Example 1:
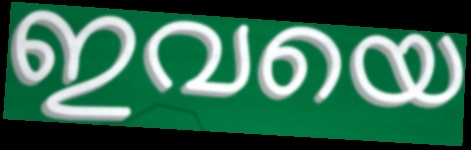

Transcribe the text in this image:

ഇവയെ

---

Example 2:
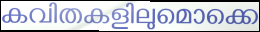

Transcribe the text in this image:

കവിതകളിലുമൊക്കെ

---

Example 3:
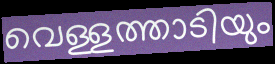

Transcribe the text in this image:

വെള്ളത്താടിയും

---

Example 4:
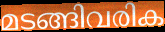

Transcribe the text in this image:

മടങ്ങിവരിക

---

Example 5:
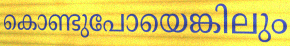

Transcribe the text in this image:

കൊണ്ടുപോയെങ്കിലും